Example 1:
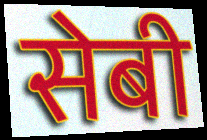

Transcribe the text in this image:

सेबी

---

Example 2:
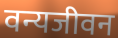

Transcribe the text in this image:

वन्यजीवन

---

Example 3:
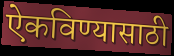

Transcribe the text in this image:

ऐकविण्यासाठी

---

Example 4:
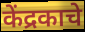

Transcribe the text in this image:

केंद्रकाचे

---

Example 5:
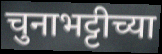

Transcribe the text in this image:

चुनाभट्टीच्या